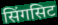
सिंगसिट